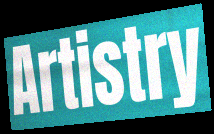
Artistry